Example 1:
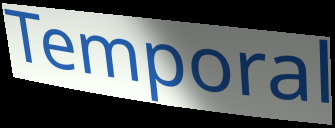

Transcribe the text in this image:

Temporal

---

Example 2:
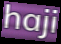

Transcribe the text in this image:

haji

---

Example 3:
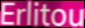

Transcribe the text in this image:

Erlitou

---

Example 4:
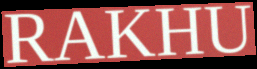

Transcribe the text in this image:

RAKHU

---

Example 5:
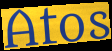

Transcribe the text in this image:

Atos